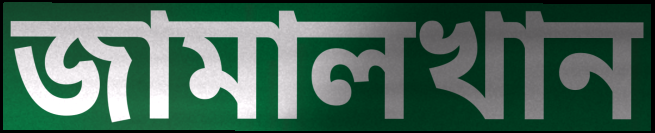
জামালখান